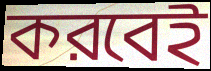
করবেই